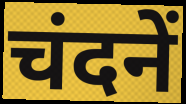
चंदनें